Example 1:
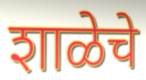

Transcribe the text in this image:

शाळेचे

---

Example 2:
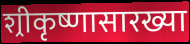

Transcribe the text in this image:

श्रीकृष्णासारख्या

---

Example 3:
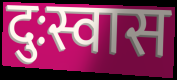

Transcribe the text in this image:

दुःस्वास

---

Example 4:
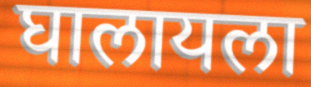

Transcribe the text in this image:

घालायला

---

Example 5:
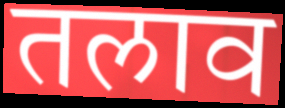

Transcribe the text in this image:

तलाव